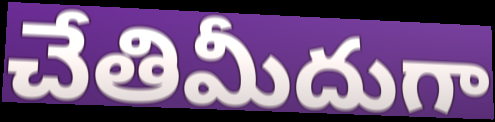
చేతిమీదుగా